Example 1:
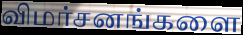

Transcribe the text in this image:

விமர்சனங்களை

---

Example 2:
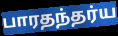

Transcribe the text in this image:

பாரதந்தர்ய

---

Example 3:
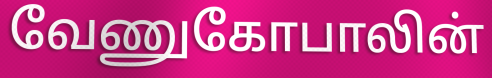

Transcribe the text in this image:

வேணுகோபாலின்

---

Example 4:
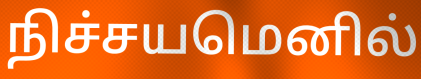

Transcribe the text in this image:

நிச்சயமெனில்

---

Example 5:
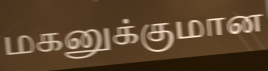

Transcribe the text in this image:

மகனுக்குமான